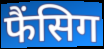
फैंसिग